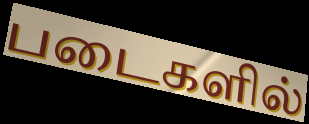
படைகளில்